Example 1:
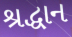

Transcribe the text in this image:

શ્રદ્ધાન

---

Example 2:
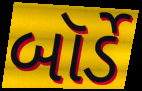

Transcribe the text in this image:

બૉર્ડે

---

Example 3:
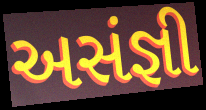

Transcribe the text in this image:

અસંજ્ઞી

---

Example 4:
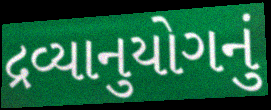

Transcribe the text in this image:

દ્રવ્યાનુયોગનું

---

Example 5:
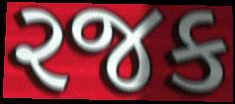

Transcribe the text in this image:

રજક